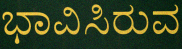
ಭಾವಿಸಿರುವ